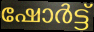
ഷോർട്ട്